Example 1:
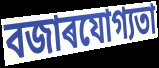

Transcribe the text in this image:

বজাৰযোগ্যতা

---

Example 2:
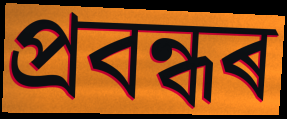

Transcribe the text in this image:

প্ৰবন্ধৰ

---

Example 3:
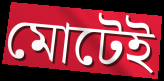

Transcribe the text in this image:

মোটেই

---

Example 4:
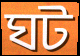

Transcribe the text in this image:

ঘট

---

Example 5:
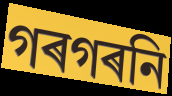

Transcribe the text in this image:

গৰগৰনি